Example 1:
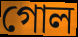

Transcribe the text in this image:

গোল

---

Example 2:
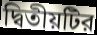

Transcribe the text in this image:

দ্বিতীয়টির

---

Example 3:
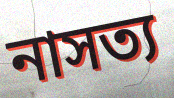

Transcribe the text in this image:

নাসত্য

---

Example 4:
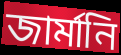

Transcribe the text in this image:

জার্মানি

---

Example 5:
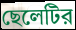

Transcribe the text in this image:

ছেলেটির